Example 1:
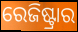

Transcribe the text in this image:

ରେଜିଷ୍ଟ୍ରାର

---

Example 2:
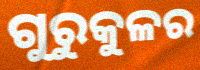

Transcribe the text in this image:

ଗୁରୁକୁଳର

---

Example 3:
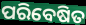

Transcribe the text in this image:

ପରିବେଷିତ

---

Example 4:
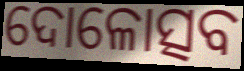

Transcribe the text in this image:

ଦୋଳୋତ୍ସବ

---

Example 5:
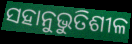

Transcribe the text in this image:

ସହାନୁଭୁତିଶୀଳ